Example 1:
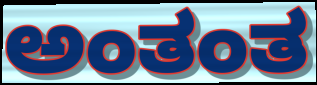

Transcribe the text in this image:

ಅಂತಂತ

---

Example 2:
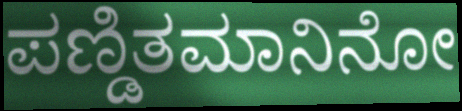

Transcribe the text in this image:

ಪಣ್ಡಿತಮಾನಿನೋ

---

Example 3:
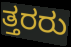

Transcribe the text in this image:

ತ್ತರರು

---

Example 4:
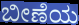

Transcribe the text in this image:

ಬೀಣೆಯ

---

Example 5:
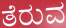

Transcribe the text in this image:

ತೆರುವ